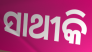
ସାଥୀକି